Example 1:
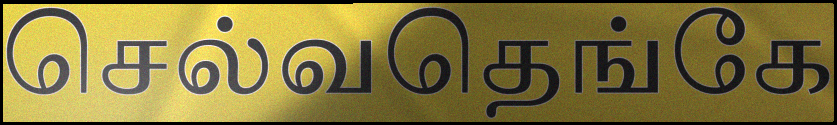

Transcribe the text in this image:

செல்வதெங்கே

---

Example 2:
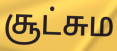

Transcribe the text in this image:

சூட்சும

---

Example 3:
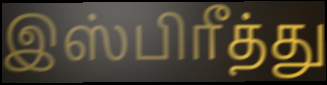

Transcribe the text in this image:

இஸ்பிரீத்து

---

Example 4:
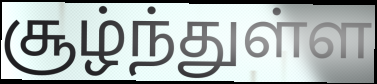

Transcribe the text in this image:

சூழ்ந்துள்ள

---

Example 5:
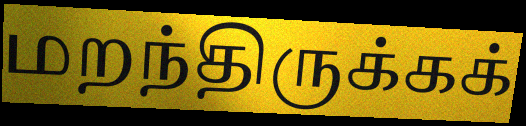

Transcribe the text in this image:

மறந்திருக்கக்